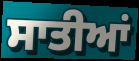
ਸਾਤੀਆਂ